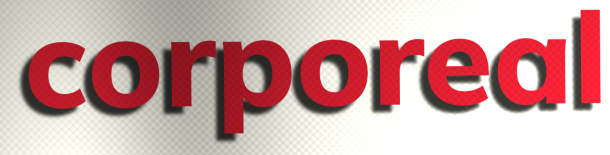
corporeal